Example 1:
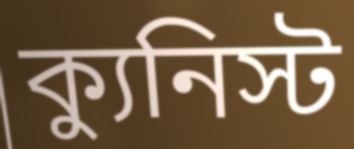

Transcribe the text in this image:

ক্যুনিস্ট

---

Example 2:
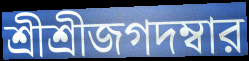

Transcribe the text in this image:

শ্রীশ্রীজগদম্বার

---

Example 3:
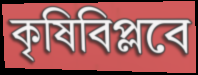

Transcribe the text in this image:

কৃষিবিপ্লবে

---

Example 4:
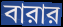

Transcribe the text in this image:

বারার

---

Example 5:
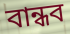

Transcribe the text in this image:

বান্ধব